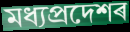
মধ্যপ্ৰদেশৰ